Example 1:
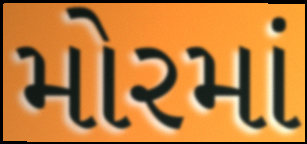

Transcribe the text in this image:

મોરમાં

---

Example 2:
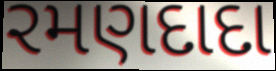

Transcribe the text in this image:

રમણદાદા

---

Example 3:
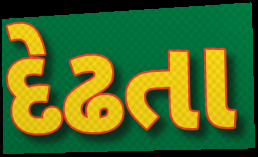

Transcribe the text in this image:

દેઢતા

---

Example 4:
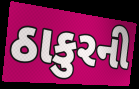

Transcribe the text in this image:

ઠાકુરની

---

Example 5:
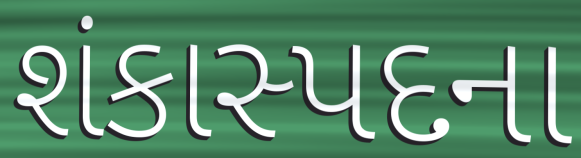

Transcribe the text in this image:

શંકાસ્પદના